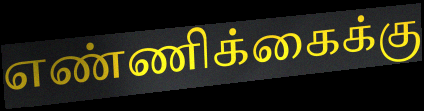
எண்ணிக்கைக்கு